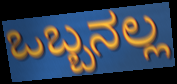
ಒಬ್ಬನಲ್ಲ